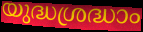
യുദ്ധശ്രദ്ധാം